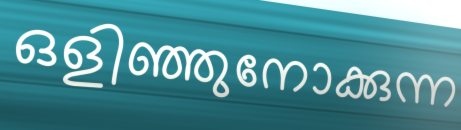
ഒളിഞ്ഞുനോക്കുന്ന